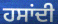
ਹਸਾਂਦੀ